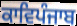
ਕਾਵਿਪੰਜਾਬ